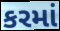
કરમાં